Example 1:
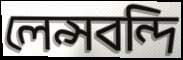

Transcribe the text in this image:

লেন্সবন্দি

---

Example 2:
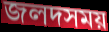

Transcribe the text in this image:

জলদসময়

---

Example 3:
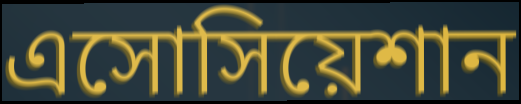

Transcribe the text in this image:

এসোসিয়েশান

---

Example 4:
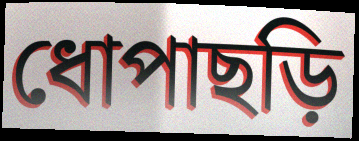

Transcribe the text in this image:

ধোপাছড়ি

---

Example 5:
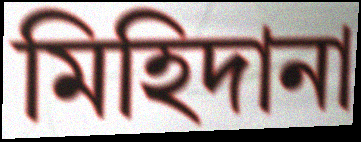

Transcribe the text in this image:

মিহিদানা